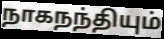
நாகநந்தியும்